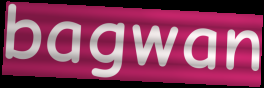
bagwan